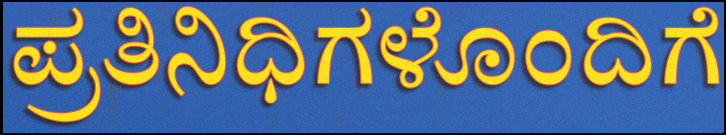
ಪ್ರತಿನಿಧಿಗಳೊಂದಿಗೆ